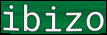
ibizo